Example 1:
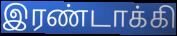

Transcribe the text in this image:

இரண்டாக்கி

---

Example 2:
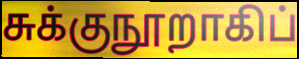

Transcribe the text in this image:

சுக்குநூறாகிப்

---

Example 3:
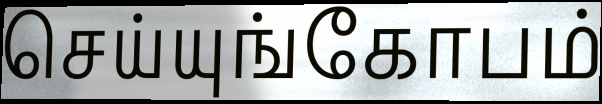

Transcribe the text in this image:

செய்யுங்கோபம்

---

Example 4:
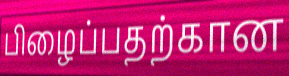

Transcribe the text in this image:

பிழைப்பதற்கான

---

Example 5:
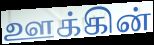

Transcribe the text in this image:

ஊக்கின்